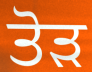
ਤੋੜ